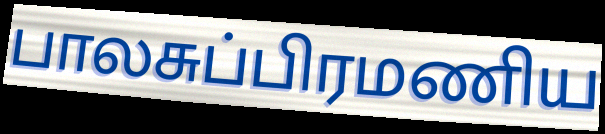
பாலசுப்பிரமணிய